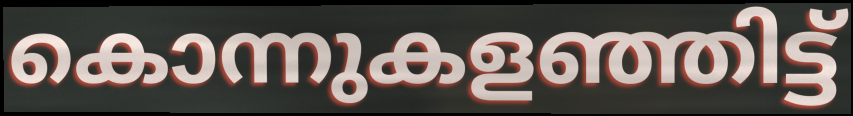
കൊന്നുകളഞ്ഞിട്ട്